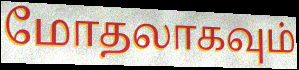
மோதலாகவும்